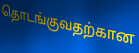
தொடங்குவதற்கான